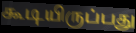
கூடியிருப்பது